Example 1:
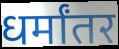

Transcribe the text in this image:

धर्मांतर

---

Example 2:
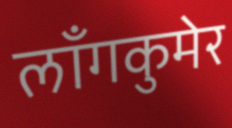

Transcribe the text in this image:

लाँगकुमेर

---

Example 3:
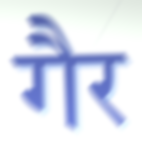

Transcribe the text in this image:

गैर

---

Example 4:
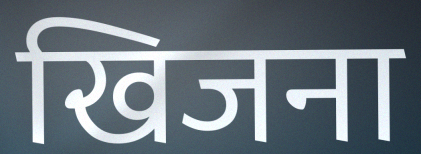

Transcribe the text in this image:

खिजना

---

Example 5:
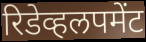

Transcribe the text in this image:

रिडेव्हलपमेंट